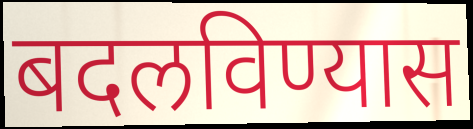
बदलविण्यास